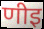
णीइ